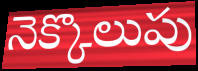
నెక్కొలుపు